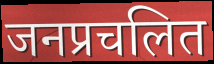
जनप्रचलित